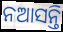
ନଆସନ୍ତି